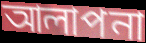
আলাপনা